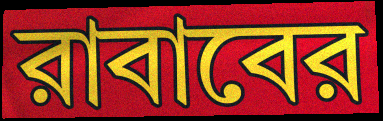
রাবাবের